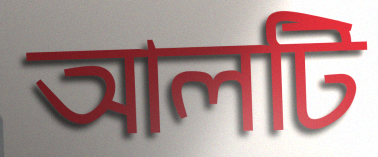
আলটি